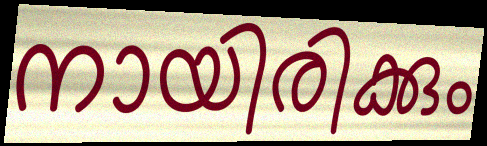
നായിരിക്കും